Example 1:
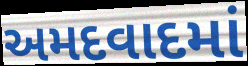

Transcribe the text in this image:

અમદવાદમાં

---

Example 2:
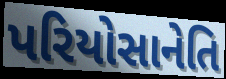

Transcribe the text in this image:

પરિયોસાનેતિ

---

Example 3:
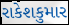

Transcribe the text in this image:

રાકેશકુમાર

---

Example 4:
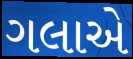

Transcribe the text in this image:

ગલાએ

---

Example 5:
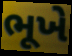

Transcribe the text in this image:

ભૂખે